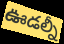
ఊడల్నీ